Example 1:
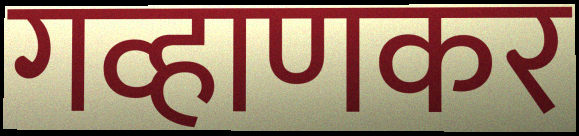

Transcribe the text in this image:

गव्हाणकर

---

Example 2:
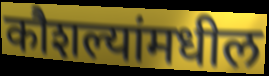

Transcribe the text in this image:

कौशल्यांमधील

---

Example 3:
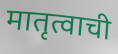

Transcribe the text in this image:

मातृत्वाची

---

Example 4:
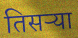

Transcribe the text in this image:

तिसऱ्या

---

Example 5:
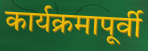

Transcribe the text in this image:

कार्यक्रमापूर्वी